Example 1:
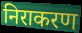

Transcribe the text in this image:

निराकरण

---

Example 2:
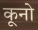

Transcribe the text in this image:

कूनो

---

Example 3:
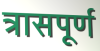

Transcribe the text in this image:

त्रासपूर्ण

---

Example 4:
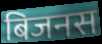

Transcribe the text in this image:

बिजनस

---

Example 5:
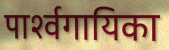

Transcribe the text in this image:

पार्श्वगायिका